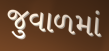
જુવાળમાં